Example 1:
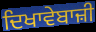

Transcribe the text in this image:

ਦਿਖਾਵੇਬਾਜ਼ੀ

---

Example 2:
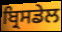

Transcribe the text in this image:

ਬ੍ਰਿਸਡੇਲ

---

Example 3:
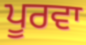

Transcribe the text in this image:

ਪੂਰਵਾ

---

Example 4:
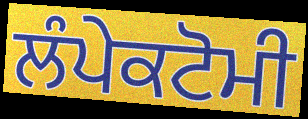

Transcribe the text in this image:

ਲੰਪੇਕਟੋਮੀ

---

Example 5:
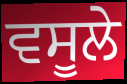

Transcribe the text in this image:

ਵਸੂਲੇ